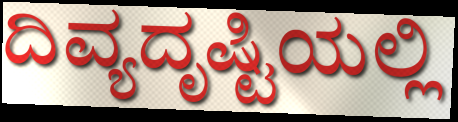
ದಿವ್ಯದೃಷ್ಟಿಯಲ್ಲಿ